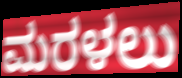
ಮರಳಲು